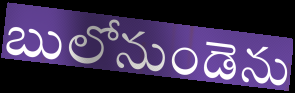
బులోనుండెను